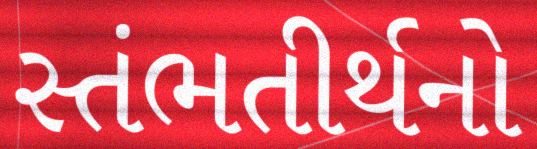
સ્તંભતીર્થનો